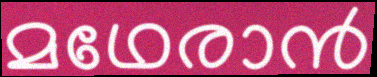
മഥേരാൻ